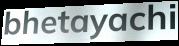
bhetayachi